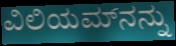
ವಿಲಿಯಮ್‌ನನ್ನು